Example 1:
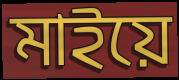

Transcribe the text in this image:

মাইয়ে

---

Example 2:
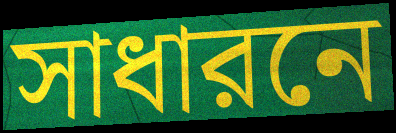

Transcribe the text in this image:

সাধারনে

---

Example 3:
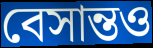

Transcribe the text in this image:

বেসান্তও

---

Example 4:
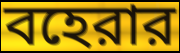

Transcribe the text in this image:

বহেরার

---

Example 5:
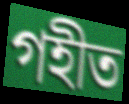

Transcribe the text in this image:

গহীত